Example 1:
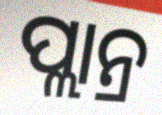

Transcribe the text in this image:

ପ୍ଲାନ୍ର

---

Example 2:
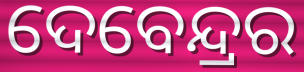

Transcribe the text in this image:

ଦେବେନ୍ଦ୍ରର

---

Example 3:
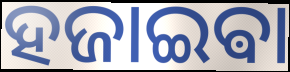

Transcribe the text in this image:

ହଜାଇଵା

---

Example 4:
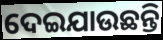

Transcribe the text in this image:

ଦେଇଯାଉଛନ୍ତି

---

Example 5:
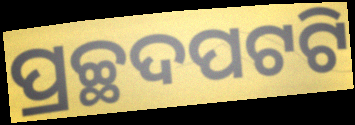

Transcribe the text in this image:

ପ୍ରଚ୍ଛଦପଟଟି